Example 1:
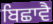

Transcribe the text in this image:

ਬਿਛਾਵੈ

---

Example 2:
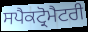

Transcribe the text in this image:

ਸਪੈਕਟ੍ਰੋਮੈਟਰੀ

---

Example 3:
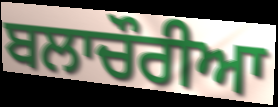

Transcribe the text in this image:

ਬਲਾਚੌਰੀਆ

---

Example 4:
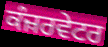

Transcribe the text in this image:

ਕੰਜ਼ਰਵੇਟਰ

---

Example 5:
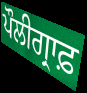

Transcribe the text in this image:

ਪੌਲੀਗ੍ਰਾਫ਼